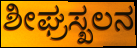
ಶೀಘ್ರಸ್ಖಲನ